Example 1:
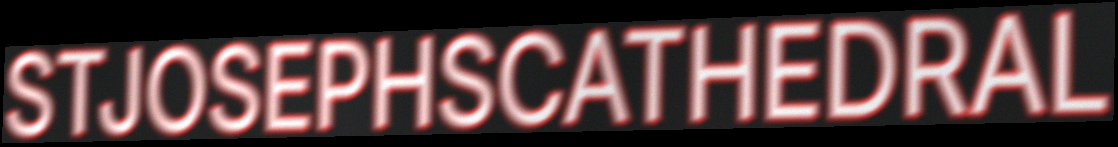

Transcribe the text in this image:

STJOSEPHSCATHEDRAL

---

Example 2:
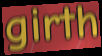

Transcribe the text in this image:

girth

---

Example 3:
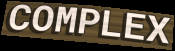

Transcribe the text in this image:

COMPLEX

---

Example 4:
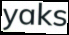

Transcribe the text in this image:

yaks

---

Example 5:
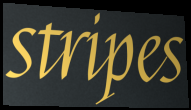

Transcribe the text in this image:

stripes